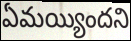
ఏమయ్యిందని